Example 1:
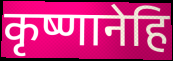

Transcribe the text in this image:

कृष्णानेहि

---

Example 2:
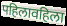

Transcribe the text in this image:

पहिलावहिला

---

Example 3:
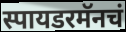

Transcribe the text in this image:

स्पायडरमॅनचं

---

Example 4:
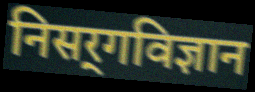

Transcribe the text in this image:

निसर्गविज्ञान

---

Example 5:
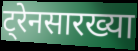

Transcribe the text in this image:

ट्रेनसारख्या